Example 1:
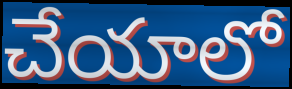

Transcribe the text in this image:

చేయాలో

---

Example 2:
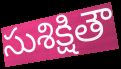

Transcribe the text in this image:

సుశిక్షితౌ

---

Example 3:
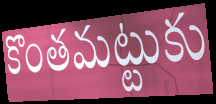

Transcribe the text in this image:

కొంతమట్టుకు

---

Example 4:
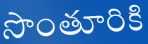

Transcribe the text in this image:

సొంతూరికి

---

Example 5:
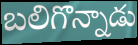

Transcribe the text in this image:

బలిగొన్నాడు